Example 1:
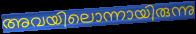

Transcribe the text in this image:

അവയിലൊന്നായിരുന്നു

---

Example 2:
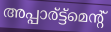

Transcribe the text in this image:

അപ്പാര്ട്ട്മെന്റ്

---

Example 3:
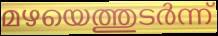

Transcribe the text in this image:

മഴയെത്തുടർന്ന്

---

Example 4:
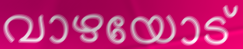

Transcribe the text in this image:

വാഴയോട്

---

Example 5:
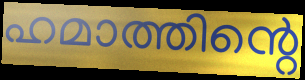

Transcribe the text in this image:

ഹമാത്തിന്റെ